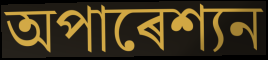
অপাৰেশ্যন